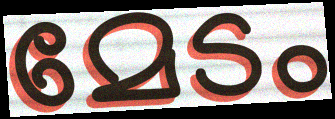
മേടം